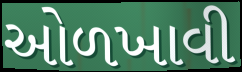
ઓળખાવી